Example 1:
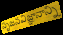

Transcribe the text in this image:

సృజనవిజ్ఞానాన్ని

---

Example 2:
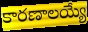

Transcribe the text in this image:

కారణాలయ్యే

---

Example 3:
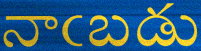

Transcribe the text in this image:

నాఁబడు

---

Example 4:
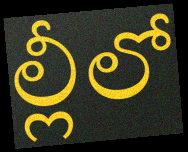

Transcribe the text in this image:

ల్లీలో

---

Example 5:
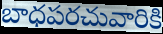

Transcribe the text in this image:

బాధపరచువారికి